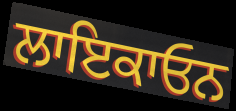
ਲਾਇਕਾਓਨ